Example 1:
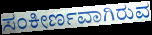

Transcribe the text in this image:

ಸಂಕೀರ್ಣವಾಗಿರುವ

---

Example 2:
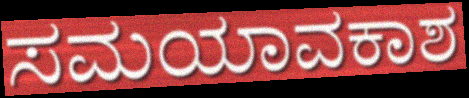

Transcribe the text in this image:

ಸಮಯಾವಕಾಶ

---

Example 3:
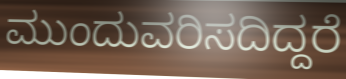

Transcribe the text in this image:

ಮುಂದುವರಿಸದಿದ್ದರೆ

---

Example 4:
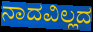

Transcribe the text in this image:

ನಾದವಿಲ್ಲದ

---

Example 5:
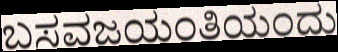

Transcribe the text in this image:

ಬಸವಜಯಂತಿಯಂದು